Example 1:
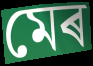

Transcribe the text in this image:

মেৰ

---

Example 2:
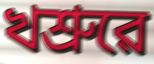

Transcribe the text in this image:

খশ্ৰুৱে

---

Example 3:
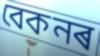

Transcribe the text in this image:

বেকনৰ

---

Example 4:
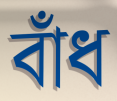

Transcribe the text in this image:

বাঁধ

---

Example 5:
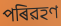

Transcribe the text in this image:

পৰিৱহণ